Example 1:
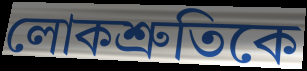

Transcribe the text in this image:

লোকশ্রুতিকে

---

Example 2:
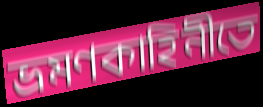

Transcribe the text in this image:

ভ্রমণকাহিনীতে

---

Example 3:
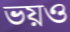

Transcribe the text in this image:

ভয়ও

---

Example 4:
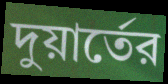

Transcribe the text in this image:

দুয়ার্তের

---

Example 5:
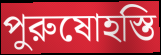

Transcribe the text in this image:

পুরুষোহস্তি